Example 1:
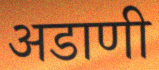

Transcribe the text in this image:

अडाणी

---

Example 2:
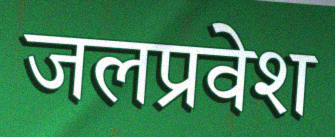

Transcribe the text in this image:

जलप्रवेश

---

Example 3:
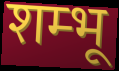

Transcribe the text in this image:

शम्भू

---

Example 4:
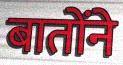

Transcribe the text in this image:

बातोंने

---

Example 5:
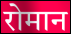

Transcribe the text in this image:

रोमान